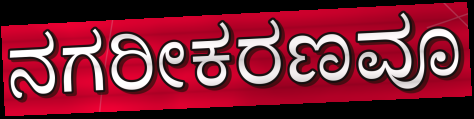
ನಗರೀಕರಣವೂ